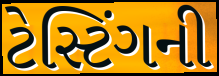
ટેસ્ટિંગની